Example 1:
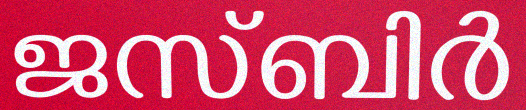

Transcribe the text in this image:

ജസ്ബിർ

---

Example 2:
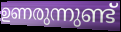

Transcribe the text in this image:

ഉണരുന്നുണ്ട്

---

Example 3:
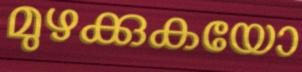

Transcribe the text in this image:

മുഴക്കുകയോ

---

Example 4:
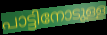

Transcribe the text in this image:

പാട്ടിനോടുള്ള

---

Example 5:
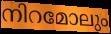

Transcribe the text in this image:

നിറമോലും